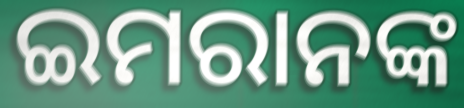
ଇମରାନଙ୍କ